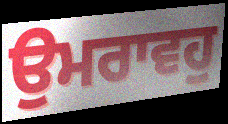
ਉਮਰਾਵਹੁ